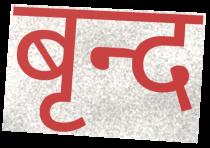
बृन्द